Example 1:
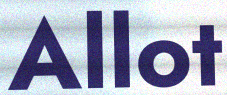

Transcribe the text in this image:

Allot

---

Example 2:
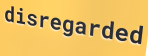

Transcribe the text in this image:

disregarded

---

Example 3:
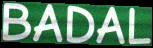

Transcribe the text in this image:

BADAL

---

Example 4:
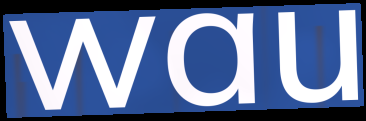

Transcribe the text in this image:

wau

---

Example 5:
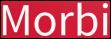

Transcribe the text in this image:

Morbi